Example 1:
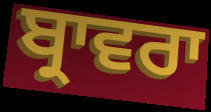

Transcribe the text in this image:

ਬ੍ਰਾਵਰਾ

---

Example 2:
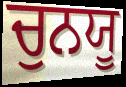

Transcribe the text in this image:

ਚੁਨਯੂ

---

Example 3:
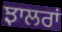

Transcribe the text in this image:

ਝਾਲਰਾਂ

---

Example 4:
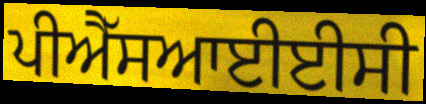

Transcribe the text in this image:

ਪੀਐੱਸਆਈਈਸੀ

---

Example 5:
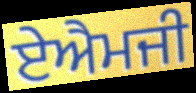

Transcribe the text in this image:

ਏਐਮਜੀ